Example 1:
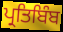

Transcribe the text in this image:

ਪ੍ਰਤਿਬਿੰਬ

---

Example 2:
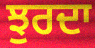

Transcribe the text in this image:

ਝੁਰਦਾ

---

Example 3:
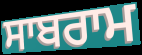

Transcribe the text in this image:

ਸਾਬਰਾਮ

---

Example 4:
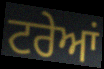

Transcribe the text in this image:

ਟਰੇਆਂ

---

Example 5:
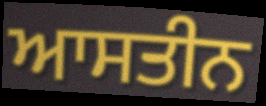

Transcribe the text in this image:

ਆਸਤੀਨ